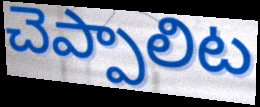
చెప్పాలిట